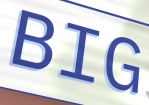
BIG